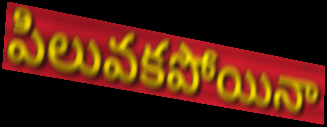
పిలువకపోయినా